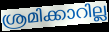
ശ്രമിക്കാറില്ല